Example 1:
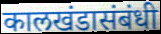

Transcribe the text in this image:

कालखंडासंबंधी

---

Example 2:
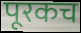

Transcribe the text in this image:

पूरकच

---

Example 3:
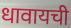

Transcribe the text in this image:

धावायची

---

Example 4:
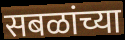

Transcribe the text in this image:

सबळांच्या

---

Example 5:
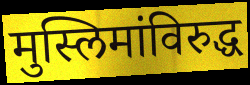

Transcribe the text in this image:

मुस्लिमांविरुद्ध